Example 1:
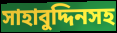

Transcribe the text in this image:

সাহাবুদ্দিনসহ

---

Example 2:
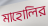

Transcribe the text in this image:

মাহোলির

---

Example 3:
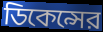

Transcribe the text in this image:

ডিকেন্সের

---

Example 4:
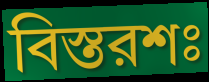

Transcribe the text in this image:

বিস্তরশঃ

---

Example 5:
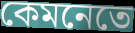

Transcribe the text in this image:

কেমনেতে